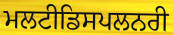
ਮਲਟੀਡਿਸਪਲਨਰੀ